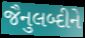
જૈનુલબ્દીને